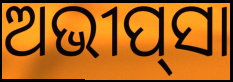
ଅଭୀପ୍‌ସା